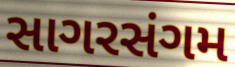
સાગરસંગમ